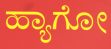
ಹ್ಯಾಗೋ